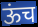
ऊंच